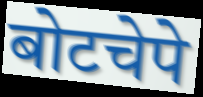
बोटचेपे